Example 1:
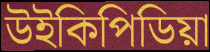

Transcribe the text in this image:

উইকিপিডিয়া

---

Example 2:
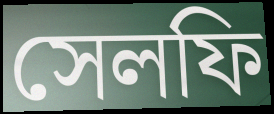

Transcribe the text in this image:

সেলফি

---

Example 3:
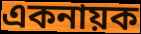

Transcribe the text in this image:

একনায়ক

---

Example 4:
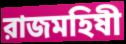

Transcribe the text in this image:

রাজমহিষী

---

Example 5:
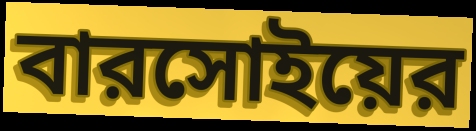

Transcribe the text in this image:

বারসোইয়ের